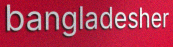
bangladesher